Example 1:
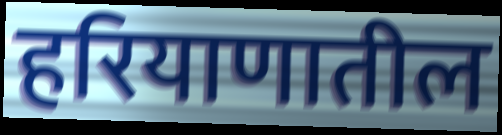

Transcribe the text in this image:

हरियाणातील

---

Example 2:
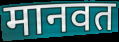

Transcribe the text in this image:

मानवत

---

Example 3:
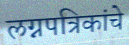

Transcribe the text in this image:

लग्नपत्रिकांचे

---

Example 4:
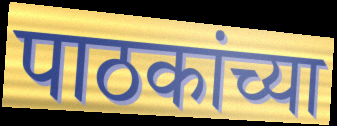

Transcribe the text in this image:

पाठकांच्या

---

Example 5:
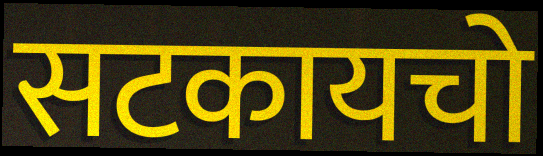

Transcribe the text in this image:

सटकायचो